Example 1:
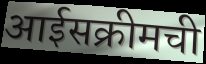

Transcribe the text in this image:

आईसक्रीमची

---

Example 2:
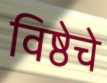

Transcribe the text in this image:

विष्ठेचे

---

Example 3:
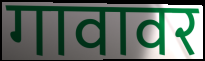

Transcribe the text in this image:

गावावर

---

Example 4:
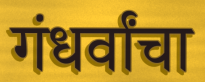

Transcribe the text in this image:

गंधर्वांचा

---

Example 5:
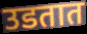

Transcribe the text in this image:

उडतात